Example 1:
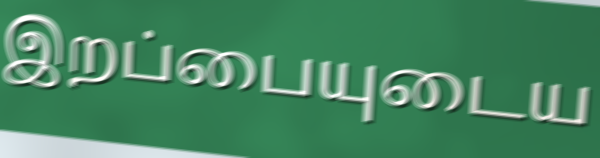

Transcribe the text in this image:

இறப்பையுடைய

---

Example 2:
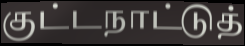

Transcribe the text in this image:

குட்டநாட்டுத்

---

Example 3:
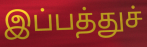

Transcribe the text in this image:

இப்பத்துச்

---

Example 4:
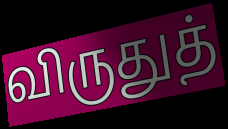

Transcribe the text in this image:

விருதுத்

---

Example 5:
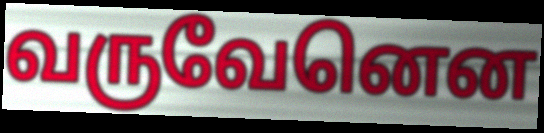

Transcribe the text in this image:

வருவேனென